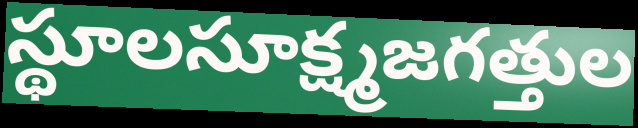
స్థూలసూక్ష్మజగత్తుల